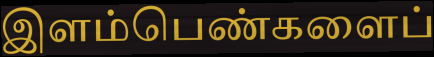
இளம்பெண்களைப்